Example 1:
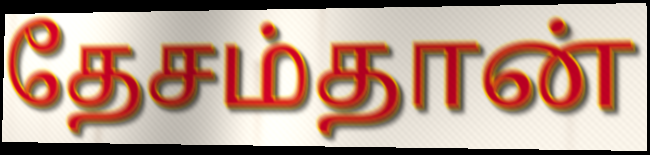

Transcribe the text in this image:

தேசம்தான்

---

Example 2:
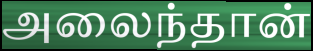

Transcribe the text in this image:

அலைந்தான்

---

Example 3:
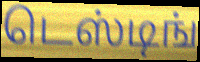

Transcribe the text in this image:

டெஸ்டிங்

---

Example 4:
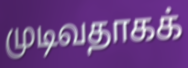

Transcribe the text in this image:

முடிவதாகக்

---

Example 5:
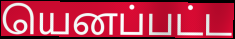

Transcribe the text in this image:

யெனப்பட்ட